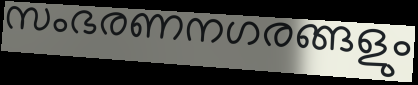
സംഭരണനഗരങ്ങളും